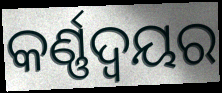
କର୍ଣ୍ଣଦ୍ୱୟର